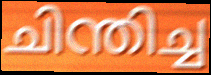
ചിന്തിച്ച